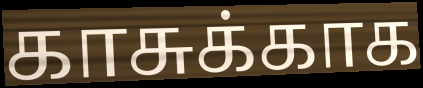
காசுக்காக